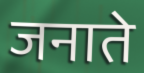
जनाते